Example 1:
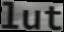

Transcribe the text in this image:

lut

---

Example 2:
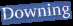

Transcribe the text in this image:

Downing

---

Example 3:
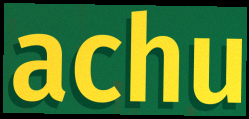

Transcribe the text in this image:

achu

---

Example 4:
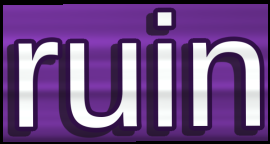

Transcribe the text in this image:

ruin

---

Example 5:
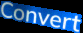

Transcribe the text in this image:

Convert